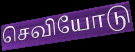
செவியோடு